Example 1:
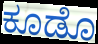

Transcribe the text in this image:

ಕೂಡೊ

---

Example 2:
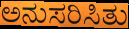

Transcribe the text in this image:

ಅನುಸರಿಸಿತು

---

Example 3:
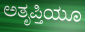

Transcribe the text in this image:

ಅತೃಪ್ತಿಯೂ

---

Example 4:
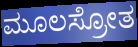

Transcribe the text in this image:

ಮೂಲಸ್ರೋತ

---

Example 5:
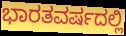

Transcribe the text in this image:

ಭಾರತವರ್ಷದಲ್ಲಿ